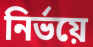
নির্ভয়ে